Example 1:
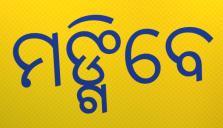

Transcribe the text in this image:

ମଙ୍ଗିବେ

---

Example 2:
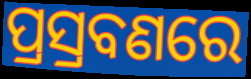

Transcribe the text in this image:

ପ୍ରସ୍ରବଣରେ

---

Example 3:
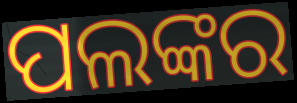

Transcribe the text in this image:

ପଲଙ୍କର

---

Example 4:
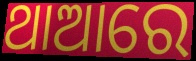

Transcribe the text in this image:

ଥାଆରେ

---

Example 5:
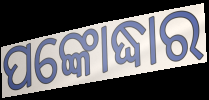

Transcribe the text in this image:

ପଙ୍କୋଦ୍ଧାର